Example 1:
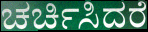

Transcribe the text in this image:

ಚರ್ಚಿಸಿದರೆ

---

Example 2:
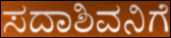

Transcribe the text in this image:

ಸದಾಶಿವನಿಗೆ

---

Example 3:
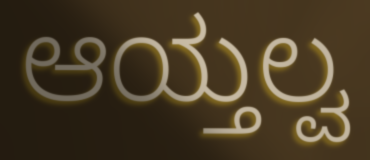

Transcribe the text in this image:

ಆಯ್ತಲ್ವ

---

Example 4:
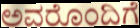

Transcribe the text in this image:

ಅವರೊಂದಿಗೆ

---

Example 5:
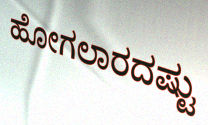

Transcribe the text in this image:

ಹೋಗಲಾರದಷ್ಟು